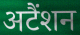
अटैंशन